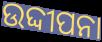
ଉଦ୍ଦୀପନା